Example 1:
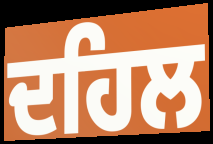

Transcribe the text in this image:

ਦਹਿਲ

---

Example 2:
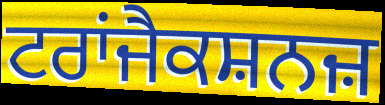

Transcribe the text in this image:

ਟਰਾਂਜੈਕਸ਼ਨਜ਼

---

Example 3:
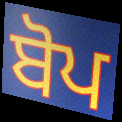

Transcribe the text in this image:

ਬੋਪ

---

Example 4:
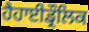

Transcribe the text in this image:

ਹੈਹਾਈਡ੍ਰੌਲਿਕ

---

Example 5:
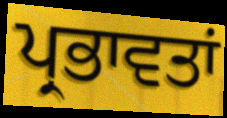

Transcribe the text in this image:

ਪ੍ਰਭਾਵਤਾਂ